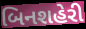
બિનશહેરી